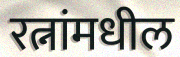
रत्नांमधील